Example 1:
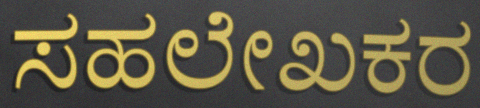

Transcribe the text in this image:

ಸಹಲೇಖಕರ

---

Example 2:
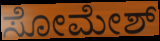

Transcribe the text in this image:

ಸೋಮೇಶ್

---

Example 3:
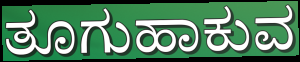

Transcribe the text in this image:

ತೂಗುಹಾಕುವ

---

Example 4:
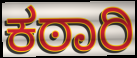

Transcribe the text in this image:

ಕಠಾರಿ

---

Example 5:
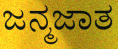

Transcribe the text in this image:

ಜನ್ಮಜಾತ